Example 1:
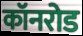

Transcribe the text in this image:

कॉनरोड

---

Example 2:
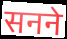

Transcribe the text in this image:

सनने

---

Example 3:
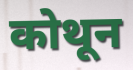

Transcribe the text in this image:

कोथून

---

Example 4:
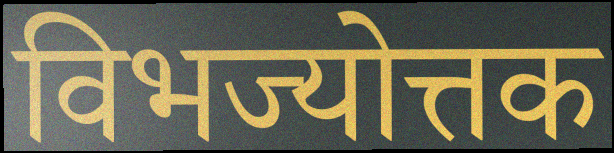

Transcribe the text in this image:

विभज्योत्तक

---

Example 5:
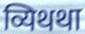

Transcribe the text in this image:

व्यिथथा